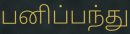
பனிப்பந்து